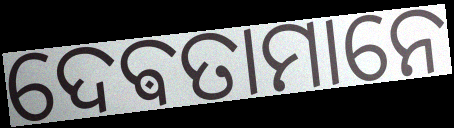
ଦେଵତାମାନେ